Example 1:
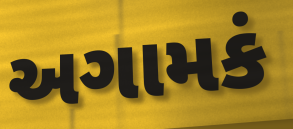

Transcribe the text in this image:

અગામકં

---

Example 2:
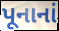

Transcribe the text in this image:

પૂનાનાં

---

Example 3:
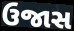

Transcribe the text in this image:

ઉજાસ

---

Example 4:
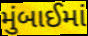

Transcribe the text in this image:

મુંબાઈમાં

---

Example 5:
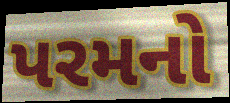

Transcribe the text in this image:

પરમનો